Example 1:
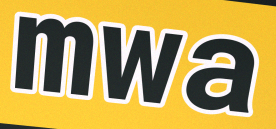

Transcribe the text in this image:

mwa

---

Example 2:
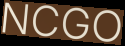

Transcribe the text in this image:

NCGO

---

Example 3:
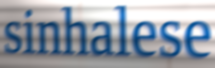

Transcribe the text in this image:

sinhalese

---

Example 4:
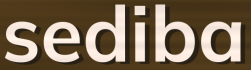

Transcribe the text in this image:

sediba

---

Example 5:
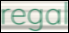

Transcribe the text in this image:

regal